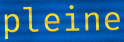
pleine